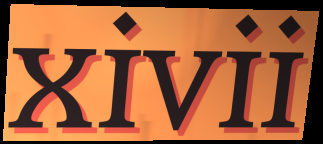
xivii